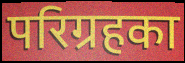
परिग्रहका